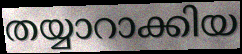
തയ്യാറാക്കിയ